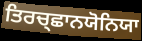
ਤਿਰਚ੍ਛਾਨਯੋਨਿਯਾ